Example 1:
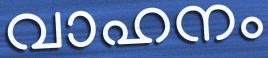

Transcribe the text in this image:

വാഹനം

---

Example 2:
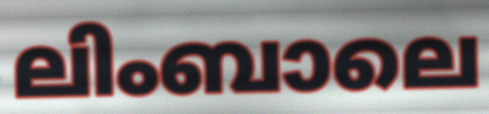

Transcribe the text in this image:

ലിംബാലെ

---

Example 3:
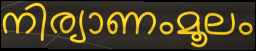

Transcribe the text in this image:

നിര്യാണംമൂലം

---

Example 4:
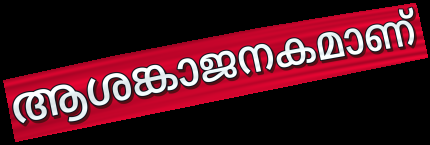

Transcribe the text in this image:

ആശങ്കാജനകമാണ്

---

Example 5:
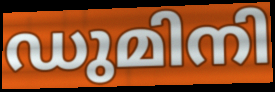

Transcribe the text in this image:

ഡുമിനി